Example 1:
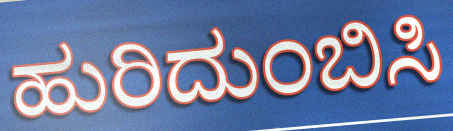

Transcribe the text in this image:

ಹುರಿದುಂಬಿಸಿ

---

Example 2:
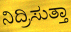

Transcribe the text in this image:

ನಿದ್ರಿಸುತ್ತಾ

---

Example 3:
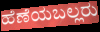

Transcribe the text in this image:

ಹೆಣೆಯಬಲ್ಲರು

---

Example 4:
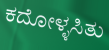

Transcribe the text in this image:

ಕದೋಳ್ಳಸಿತು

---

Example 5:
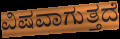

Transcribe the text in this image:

ವಿಷವಾಗುತ್ತದೆ